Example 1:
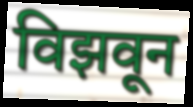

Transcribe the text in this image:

विझवून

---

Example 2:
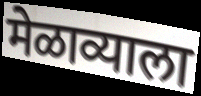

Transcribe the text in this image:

मेळाव्याला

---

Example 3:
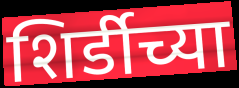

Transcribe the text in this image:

शिर्डीच्या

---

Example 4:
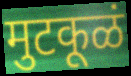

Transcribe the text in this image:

मुटकूळं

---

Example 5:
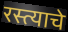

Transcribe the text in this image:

रस्त्याचे